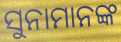
ସୁନାମାନଙ୍କ